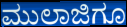
ಮುಲಾಜಿಗೂ